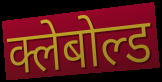
क्लेबोल्ड